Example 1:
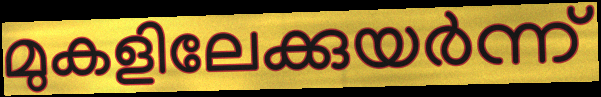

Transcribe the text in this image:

മുകളിലേക്കുയർന്ന്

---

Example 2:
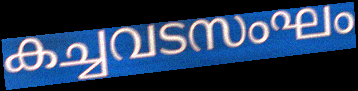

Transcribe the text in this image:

കച്ചവടസംഘം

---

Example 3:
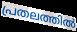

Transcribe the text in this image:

പ്രതലത്തിൽ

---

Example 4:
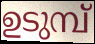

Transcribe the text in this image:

ഉടുമ്പ്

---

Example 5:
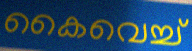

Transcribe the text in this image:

കൈവെച്ച്